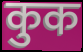
कुक